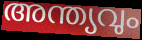
അന്ത്യവും